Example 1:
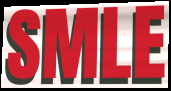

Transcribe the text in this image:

SMLE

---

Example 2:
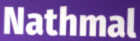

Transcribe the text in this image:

Nathmal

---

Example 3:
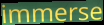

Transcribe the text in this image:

immerse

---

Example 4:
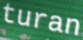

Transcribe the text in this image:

turan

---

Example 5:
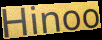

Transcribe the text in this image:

Hinoo